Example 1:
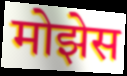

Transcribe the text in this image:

मोझेस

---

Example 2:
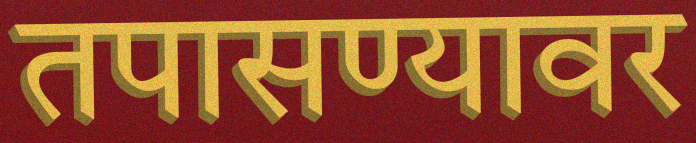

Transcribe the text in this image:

तपासण्यावर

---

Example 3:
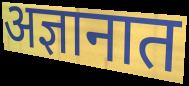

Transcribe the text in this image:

अज्ञानात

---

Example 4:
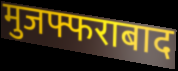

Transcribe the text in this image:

मुजफ्फराबाद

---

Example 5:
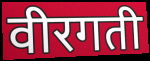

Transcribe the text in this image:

वीरगती